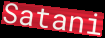
Satani